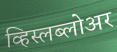
व्हिस्लब्लोअर